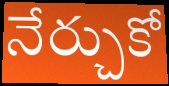
నేర్చుకో